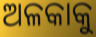
ଅଳକାକୁ